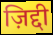
ज़िद्दी